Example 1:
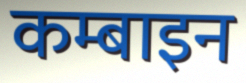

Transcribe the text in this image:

कम्बाइन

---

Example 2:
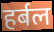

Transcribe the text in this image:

हर्बल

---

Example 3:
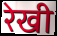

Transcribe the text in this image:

रेखी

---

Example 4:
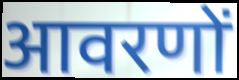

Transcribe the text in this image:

आवरणों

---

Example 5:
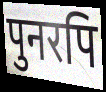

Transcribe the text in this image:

पुनरपि